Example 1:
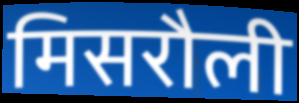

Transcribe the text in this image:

मिसरौली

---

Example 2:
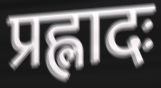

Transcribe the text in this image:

प्रह्लादः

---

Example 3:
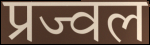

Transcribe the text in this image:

प्रज्वल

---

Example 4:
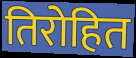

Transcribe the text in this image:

तिरोहित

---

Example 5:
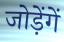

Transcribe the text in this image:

जोड़ेंगें